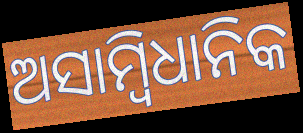
ଅସାମ୍ୱିଧାନିକ